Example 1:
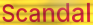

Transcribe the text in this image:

Scandal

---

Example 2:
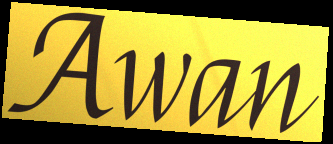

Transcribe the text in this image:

Awan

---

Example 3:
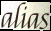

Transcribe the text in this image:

alias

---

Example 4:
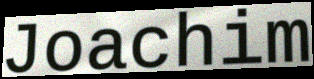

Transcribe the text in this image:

Joachim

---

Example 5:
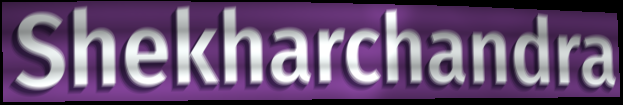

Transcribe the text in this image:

Shekharchandra